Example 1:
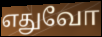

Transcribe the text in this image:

எதுவோ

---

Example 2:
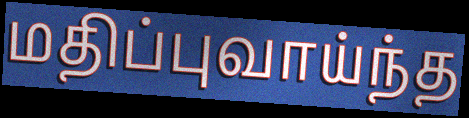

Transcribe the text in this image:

மதிப்புவாய்ந்த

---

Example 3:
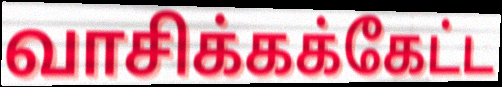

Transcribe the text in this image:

வாசிக்கக்கேட்ட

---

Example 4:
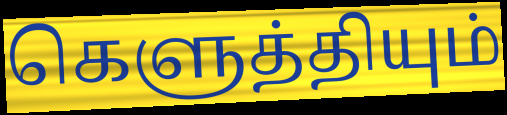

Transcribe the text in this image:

கெளுத்தியும்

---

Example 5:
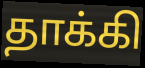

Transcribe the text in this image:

தாக்கி